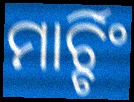
ମାର୍ଚ୍ଚିଂ